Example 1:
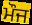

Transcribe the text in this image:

ਮੌਜ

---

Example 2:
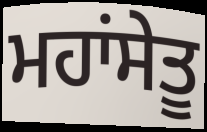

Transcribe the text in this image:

ਮਹਾਂਸੇਤੂ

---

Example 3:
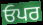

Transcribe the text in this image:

ਓਪਰ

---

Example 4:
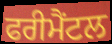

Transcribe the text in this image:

ਫਰੀਮੈਂਟਲ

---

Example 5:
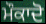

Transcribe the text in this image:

ਮੌਕਾਦੋ